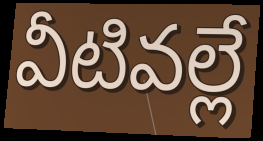
వీటివల్లే